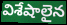
విశేషాలైన